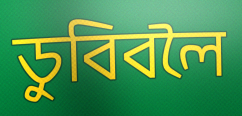
ডুবিবলৈ